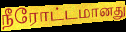
நீரோட்டமானது